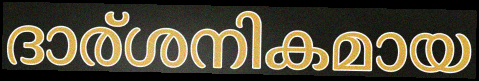
ദാര്ശനികമായ